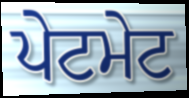
ਪੇਟਮੇਟ